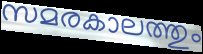
സമരകാലത്തും